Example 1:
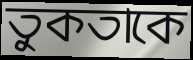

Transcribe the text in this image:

তুকতাকে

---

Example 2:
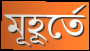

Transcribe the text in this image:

মূহূর্তে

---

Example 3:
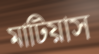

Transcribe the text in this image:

মাটিয়াস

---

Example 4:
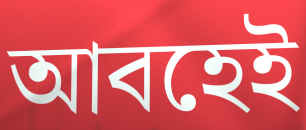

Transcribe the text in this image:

আবহেই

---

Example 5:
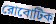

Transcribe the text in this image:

রোবোটিক